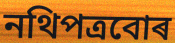
নথিপত্ৰবোৰ